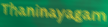
Thaninayagam